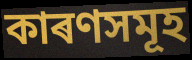
কাৰণসমূহ